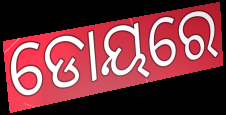
ଡୋୟରେ